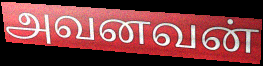
அவனவன்